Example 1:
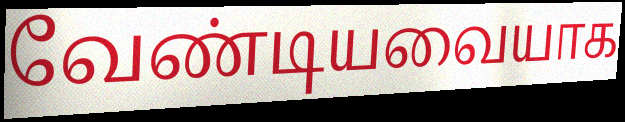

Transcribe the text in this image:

வேண்டியவையாக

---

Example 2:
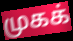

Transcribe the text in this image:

முகக்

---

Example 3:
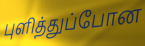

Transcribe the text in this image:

புளித்துப்போன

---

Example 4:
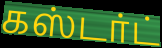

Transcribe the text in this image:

கஸ்டர்ட்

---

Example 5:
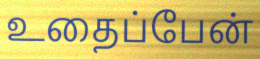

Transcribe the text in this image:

உதைப்பேன்